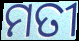
ମତୀ